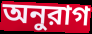
অনুরাগ